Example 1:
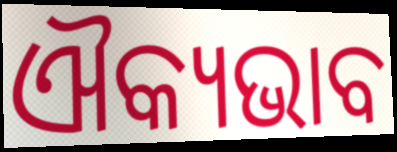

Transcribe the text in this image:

ଐକ୍ୟଭାବ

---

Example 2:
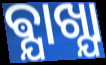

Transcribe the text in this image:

ଵ୍ଯାଖ୍ଯା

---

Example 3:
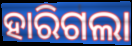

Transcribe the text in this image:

ହାରିଗଲା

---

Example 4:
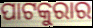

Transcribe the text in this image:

ପାଟକୁରାର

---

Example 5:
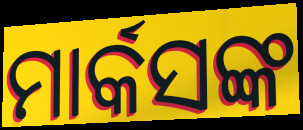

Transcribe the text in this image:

ମାର୍କସଙ୍କ